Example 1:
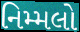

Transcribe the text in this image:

નિમ્મલો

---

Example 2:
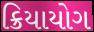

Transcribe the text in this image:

ક્રિયાયોગ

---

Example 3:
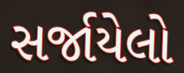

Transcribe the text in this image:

સર્જાયેલો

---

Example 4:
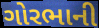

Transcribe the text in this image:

ગોરભાની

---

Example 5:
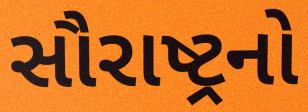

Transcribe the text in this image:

સૌરાષ્ટ્રનો